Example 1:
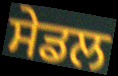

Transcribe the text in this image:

ਸੇਡਲ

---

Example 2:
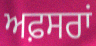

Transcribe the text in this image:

ਅਫ਼ਸਰਾਂ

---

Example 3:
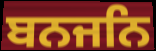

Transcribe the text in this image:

ਬਨਜਨਿ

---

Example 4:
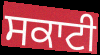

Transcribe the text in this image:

ਸਕਾਟੀ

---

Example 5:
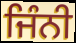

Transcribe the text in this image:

ਜਿੰਨੀ